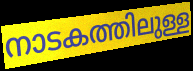
നാടകത്തിലുള്ള